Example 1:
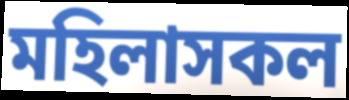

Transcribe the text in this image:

মহিলাসকল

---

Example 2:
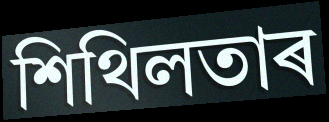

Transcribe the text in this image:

শিথিলতাৰ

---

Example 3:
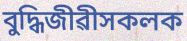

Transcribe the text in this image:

বুদ্ধিজীৱীসকলক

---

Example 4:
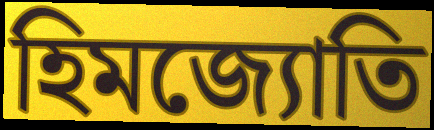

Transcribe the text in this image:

হিমজ্যোতি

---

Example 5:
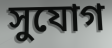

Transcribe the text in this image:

সুযোগ